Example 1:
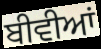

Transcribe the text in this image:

ਬੀਵੀਆਂ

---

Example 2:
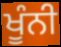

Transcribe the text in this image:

ਖੂੰਨੀ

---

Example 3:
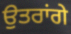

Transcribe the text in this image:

ਉਤਰਾਂਗੇ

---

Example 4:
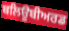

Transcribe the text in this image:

ਬਲਿਊਬੀਅਰਡ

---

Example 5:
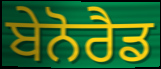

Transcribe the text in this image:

ਬੇਨੋਰੈਡ